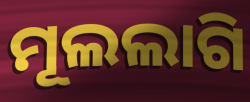
ମୂଲଲାଗି